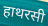
हाथरसी